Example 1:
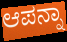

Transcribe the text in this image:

ಆಪನ್ನಾ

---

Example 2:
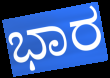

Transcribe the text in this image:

ಭಾರ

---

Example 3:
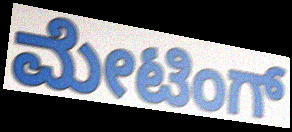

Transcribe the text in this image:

ಮೇಟಿಂಗ್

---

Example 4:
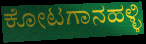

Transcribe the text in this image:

ಕೋಟಗಾನಹಳ್ಳಿ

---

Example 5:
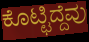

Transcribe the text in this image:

ಕೊಟ್ಟಿದ್ದೆವು